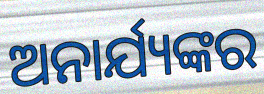
ଅନାର୍ଯ୍ୟଙ୍କର